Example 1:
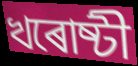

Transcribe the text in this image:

খৰোষ্টী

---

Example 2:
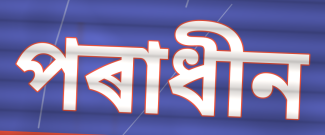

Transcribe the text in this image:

পৰাধীন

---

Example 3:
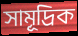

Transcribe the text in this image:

সামূদ্ৰিক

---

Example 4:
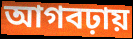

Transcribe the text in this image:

আগবঢ়ায়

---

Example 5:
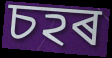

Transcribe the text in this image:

চহৰ